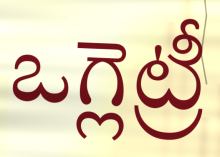
ఒగ్లెట్రీ